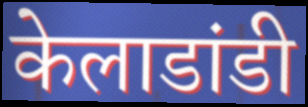
केलाडांडी